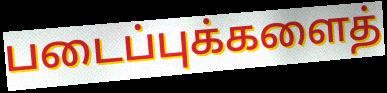
படைப்புக்களைத்